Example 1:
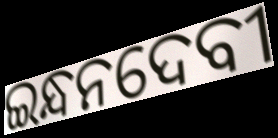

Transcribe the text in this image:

ଇନ୍ଧନଦେବୀ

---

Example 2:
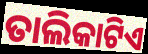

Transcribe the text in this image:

ତାଲିକାଟିଏ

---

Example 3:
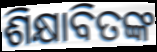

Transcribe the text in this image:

ଶିକ୍ଷାବିତଙ୍କ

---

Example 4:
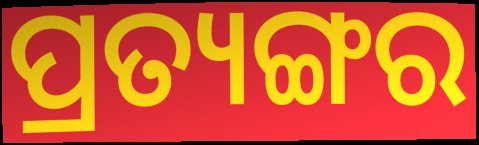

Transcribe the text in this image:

ପ୍ରତ୍ୟଙ୍ଗର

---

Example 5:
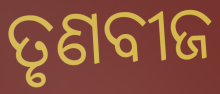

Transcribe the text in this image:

ତୃଣବୀଜ